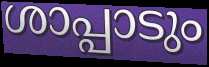
ശാപ്പാടും